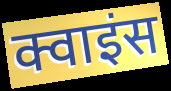
क्वाइंस